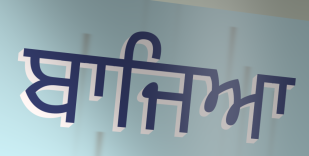
ਬਾਜਿਆ